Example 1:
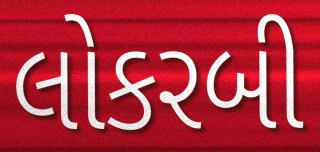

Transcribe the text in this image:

લોકરબી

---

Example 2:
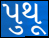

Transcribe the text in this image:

પુથૂ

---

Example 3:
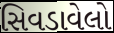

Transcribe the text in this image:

સિવડાવેલો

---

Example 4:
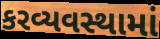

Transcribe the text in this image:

કરવ્યવસ્થામાં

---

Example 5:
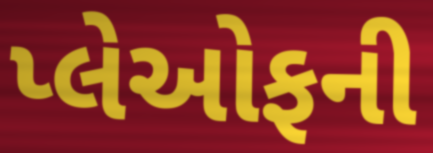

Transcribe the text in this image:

પ્લેઓફની